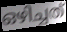
ഒഴിച്ചത്